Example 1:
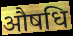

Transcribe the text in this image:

औषधि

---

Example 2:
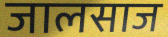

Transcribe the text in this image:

जालसाज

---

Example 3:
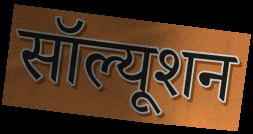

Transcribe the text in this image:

सॉल्यूशन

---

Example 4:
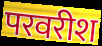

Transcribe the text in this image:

परवरीश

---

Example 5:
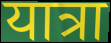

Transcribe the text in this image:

यात्रा